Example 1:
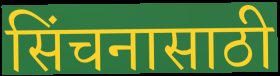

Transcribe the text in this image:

सिंचनासाठी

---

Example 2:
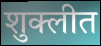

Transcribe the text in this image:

शुक्लीत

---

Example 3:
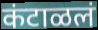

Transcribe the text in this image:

कंटाळलं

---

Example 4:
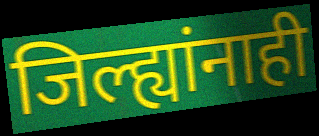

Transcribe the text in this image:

जिल्ह्यांनाही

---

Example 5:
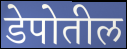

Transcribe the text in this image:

डेपोतील